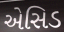
એસિડ